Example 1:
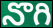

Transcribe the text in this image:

నొగి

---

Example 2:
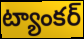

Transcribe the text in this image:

ట్యాంకర్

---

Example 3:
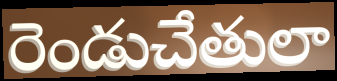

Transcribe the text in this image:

రెండుచేతులా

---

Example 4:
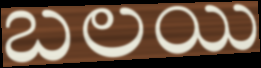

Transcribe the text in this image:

బలయి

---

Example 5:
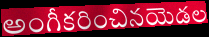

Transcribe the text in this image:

అంగీకరించినయెడల